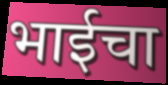
भाईचा